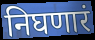
निघणारं